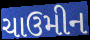
ચાઉમીન